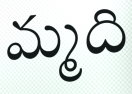
మ్మది